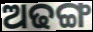
ଅଢଙ୍ଗ